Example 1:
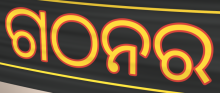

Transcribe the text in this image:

ଗଠନର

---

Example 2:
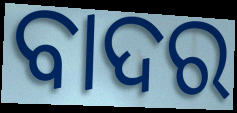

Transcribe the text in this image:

ବାଦର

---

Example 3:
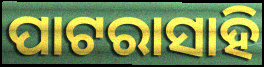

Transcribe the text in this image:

ପାଟରାସାହି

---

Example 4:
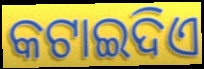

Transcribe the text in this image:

କଟାଇଦିଏ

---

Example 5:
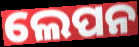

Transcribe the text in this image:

ଲେପନ